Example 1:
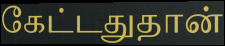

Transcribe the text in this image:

கேட்டதுதான்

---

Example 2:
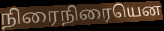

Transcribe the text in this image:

நிரைநிரையென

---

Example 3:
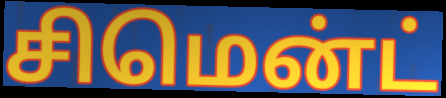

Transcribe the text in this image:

சிமென்ட்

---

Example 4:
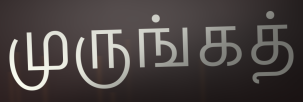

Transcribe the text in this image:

முருங்கத்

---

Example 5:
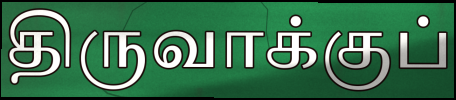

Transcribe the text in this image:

திருவாக்குப்